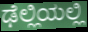
ಢೆಲ್ಲಿಯಲ್ಲಿ